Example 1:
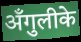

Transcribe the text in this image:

अँगुलीके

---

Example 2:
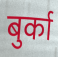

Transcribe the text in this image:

बुर्का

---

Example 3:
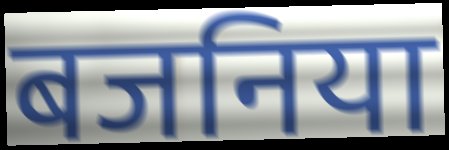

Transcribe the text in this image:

बजनिया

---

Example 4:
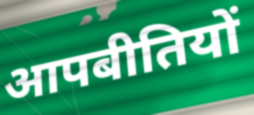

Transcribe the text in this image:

आपबीतियों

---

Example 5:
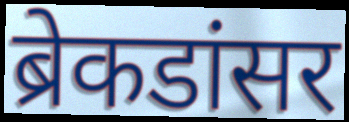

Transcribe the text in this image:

ब्रेकडांसर